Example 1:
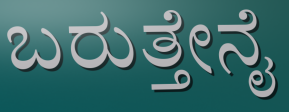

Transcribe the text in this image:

ಬರುತ್ತೇನೈ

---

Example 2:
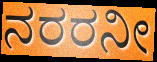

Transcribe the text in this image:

ನರರನೀ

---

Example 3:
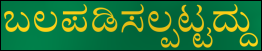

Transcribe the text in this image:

ಬಲಪಡಿಸಲ್ಪಟ್ಟದ್ದು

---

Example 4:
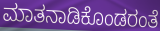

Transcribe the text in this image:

ಮಾತನಾಡಿಕೊಂಡರಂತೆ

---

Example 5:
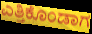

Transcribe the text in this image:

ಎತ್ತಿಕೊಂಡಾಗ